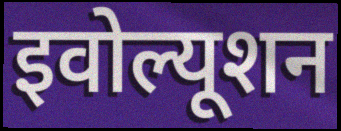
इवोल्यूशन